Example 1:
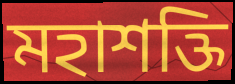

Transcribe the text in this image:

মহাশক্তি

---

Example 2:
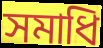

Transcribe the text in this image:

সমাধি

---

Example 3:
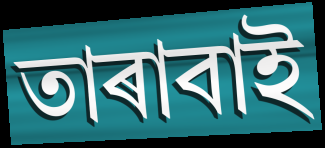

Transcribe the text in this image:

তাৰাবাই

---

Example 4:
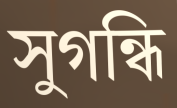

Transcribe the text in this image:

সুগন্ধি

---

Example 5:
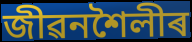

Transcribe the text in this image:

জীৱনশৈলীৰ